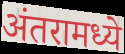
अंतरामध्ये